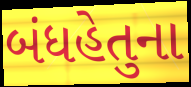
બંધહેતુના